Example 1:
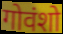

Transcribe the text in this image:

गोवंशो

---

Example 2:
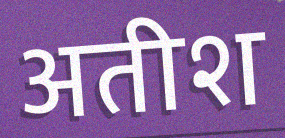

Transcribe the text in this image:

अतीश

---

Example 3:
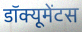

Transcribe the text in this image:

डॉक्यूमेंटस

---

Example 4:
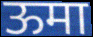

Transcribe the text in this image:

ऊमा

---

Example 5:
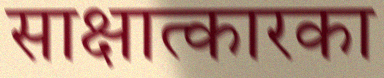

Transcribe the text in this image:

साक्षात्कारका